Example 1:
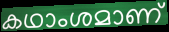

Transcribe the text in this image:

കഥാംശമാണ്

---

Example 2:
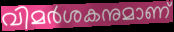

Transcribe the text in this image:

വിമർശകനുമാണ്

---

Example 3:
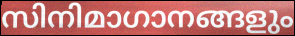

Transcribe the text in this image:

സിനിമാഗാനങ്ങളും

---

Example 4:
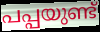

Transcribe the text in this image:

പപ്പയുണ്ട്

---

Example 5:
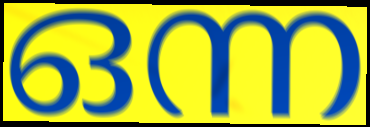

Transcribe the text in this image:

ഒന്ന